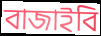
বাজাইবি